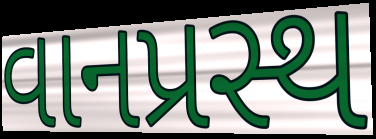
વાનપ્રસ્થ